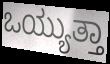
ಒಯ್ಯುತ್ತಾ